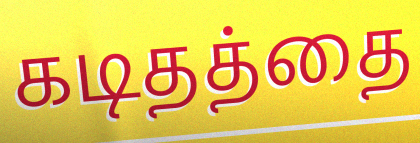
கடிதத்தை